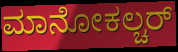
ಮಾನೋಕಲ್ಚರ್